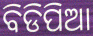
ବିଡିପିଆ